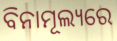
ବିନାମୂଲ୍ୟରେ